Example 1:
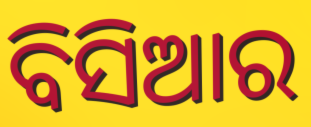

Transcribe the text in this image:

ବିସିଆର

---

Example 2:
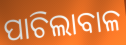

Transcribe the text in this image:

ପାଚିଲାବାଳ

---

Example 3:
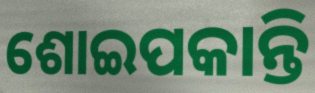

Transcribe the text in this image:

ଶୋଇପକାନ୍ତି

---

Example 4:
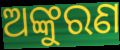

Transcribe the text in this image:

ଅଙ୍କୁରଣ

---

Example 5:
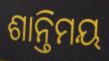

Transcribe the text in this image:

ଶାନ୍ତିମୟ